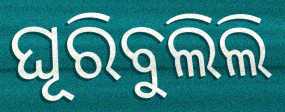
ଘୂରିବୁଲିଲି